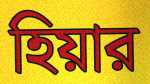
হিয়ার